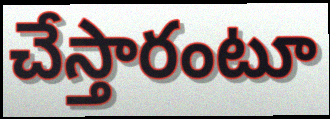
చేస్తారంటూ